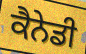
ਕੈਨੇਡੀ